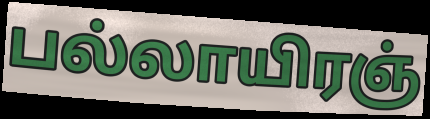
பல்லாயிரஞ்